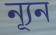
ন্যূন